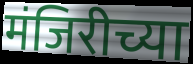
मंजिरीच्या